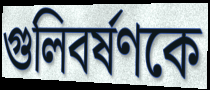
গুলিবর্ষণকে